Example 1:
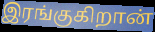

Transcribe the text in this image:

இரங்குகிறான்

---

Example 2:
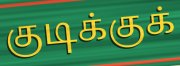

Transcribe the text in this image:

குடிக்குக்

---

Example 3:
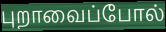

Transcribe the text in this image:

புறாவைப்போல்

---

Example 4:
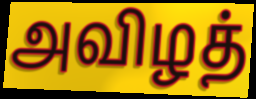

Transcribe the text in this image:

அவிழத்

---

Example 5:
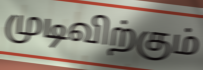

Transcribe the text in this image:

முடிவிற்கும்